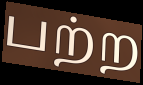
பற்ற